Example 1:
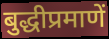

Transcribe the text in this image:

बुद्धीप्रमाणें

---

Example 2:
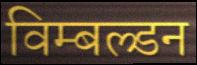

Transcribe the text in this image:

विम्बल्डन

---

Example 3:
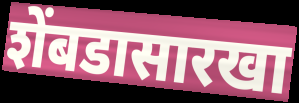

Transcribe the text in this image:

शेंबडासारखा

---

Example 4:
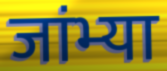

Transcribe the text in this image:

जांभ्या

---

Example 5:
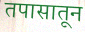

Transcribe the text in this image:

तपासातून